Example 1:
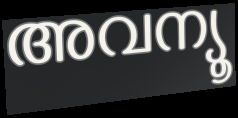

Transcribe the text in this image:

അവന്യൂ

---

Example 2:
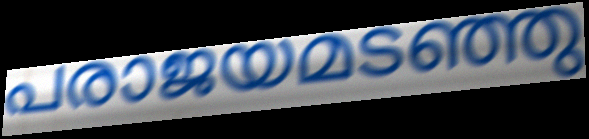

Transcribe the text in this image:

പരാജയമടഞ്ഞു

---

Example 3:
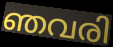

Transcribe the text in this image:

ഞവരി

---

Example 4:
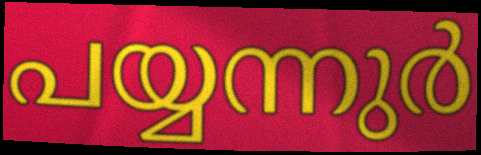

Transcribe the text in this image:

പയ്യന്നുർ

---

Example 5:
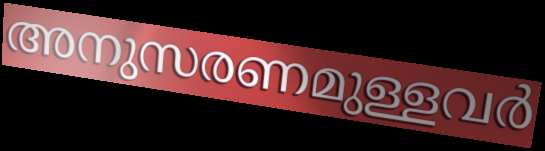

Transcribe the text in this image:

അനുസരണമുള്ളവർ